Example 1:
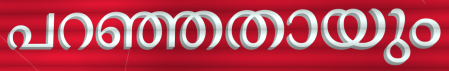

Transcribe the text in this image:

പറഞ്ഞതായും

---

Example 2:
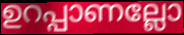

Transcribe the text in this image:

ഉറപ്പാണല്ലോ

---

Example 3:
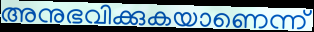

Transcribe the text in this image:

അനുഭവിക്കുകയാണെന്ന്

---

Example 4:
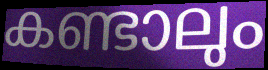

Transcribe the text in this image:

കണ്ടാലും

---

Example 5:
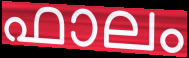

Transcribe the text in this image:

ഫാലം